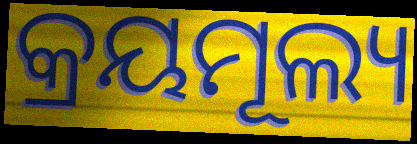
କ୍ରୟମୂଲ୍ୟ